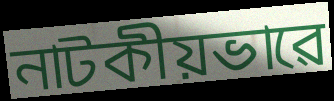
নাটকীয়ভাৱে